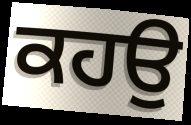
ਕਹਉ